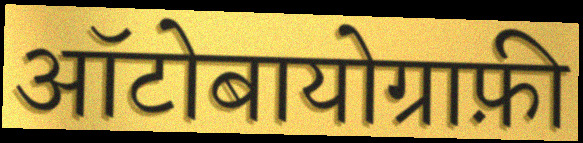
ऑटोबायोग्राफ़ी